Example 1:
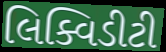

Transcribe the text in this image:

લિક્વિડીટી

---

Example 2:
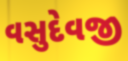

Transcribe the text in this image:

વસુદેવજી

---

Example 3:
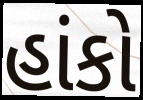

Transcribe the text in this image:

હાંકો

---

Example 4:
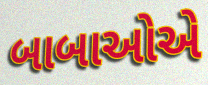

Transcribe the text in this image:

બાબાઓએ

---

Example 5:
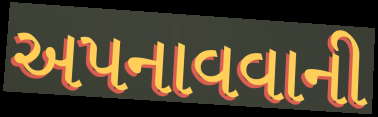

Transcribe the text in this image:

અપનાવવાની